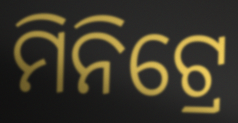
ମିନିଟ୍ରେ